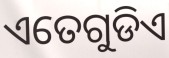
ଏତେଗୁଡିଏ